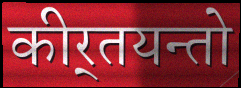
कीर्तयन्तो